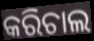
କରିଚାଲ